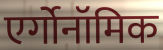
एर्गोनॉमिक